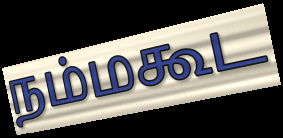
நம்மகூட